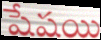
షేషయి